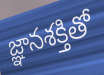
జ్ఞానశక్తితో